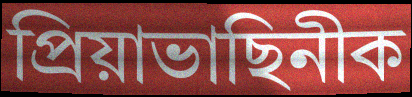
প্ৰিয়াভাছিনীক